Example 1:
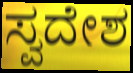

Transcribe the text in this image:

ಸ್ವದೇಶ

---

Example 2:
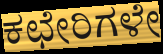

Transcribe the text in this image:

ಕಛೇರಿಗಳೇ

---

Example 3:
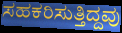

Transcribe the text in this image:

ಸಹಕರಿಸುತ್ತಿದ್ದವು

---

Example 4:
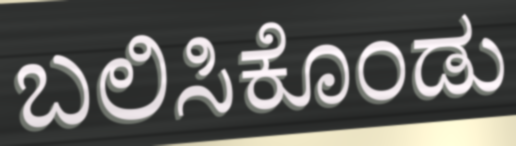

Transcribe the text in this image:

ಬಲಿಸಿಕೊಂಡು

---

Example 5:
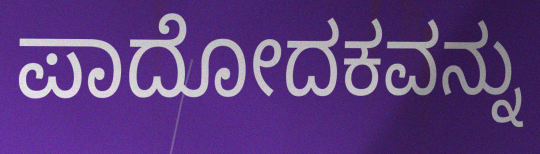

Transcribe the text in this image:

ಪಾದೋದಕವನ್ನು